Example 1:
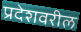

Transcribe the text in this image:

प्रदेशवरील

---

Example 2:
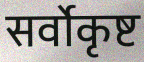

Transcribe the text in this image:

सर्वोकृष्ट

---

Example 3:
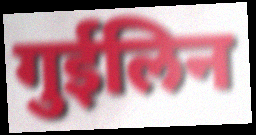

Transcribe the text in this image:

गुईलिन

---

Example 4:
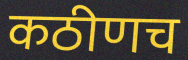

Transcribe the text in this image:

कठीणच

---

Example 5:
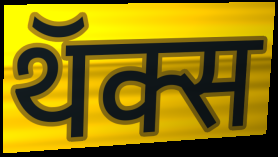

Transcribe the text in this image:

थॅक्स